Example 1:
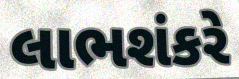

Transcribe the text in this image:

લાભશંકરે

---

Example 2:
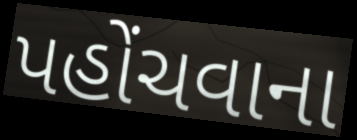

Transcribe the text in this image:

પહોંચવાના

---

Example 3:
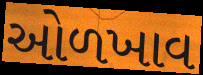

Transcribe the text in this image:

ઓળખાવ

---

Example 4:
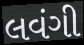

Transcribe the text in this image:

લવંગી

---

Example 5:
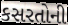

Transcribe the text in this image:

કસરતોની